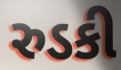
રુડકી